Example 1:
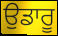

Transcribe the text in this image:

ਉਡਾਰੂ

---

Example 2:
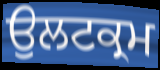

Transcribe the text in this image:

ਉਲਟਕ੍ਰਮ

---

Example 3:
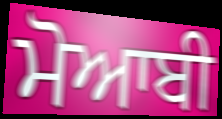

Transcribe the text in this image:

ਮੋਆਬੀ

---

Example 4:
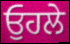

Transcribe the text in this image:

ਓੁਹਲੇ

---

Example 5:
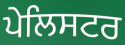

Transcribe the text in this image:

ਪੇਲਿਸਟਰ